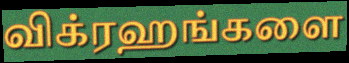
விக்ரஹங்களை